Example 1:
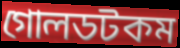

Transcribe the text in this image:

গোলডটকম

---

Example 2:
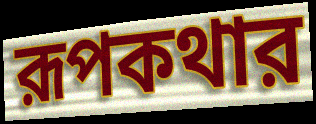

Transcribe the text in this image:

রূপকথার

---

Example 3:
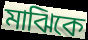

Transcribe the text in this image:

মাঝিকে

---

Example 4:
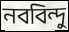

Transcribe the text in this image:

নববিন্দু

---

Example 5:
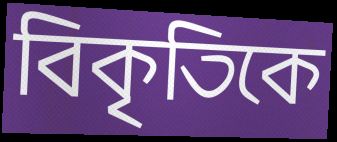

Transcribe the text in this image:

বিকৃতিকে